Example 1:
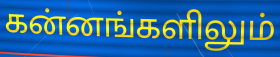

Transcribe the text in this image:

கன்னங்களிலும்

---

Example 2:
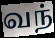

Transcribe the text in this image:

வந்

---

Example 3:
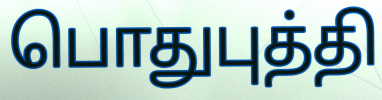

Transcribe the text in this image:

பொதுபுத்தி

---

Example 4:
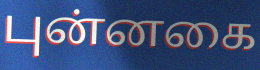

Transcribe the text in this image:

புன்னகை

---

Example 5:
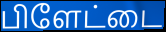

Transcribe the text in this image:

பிளேட்டை